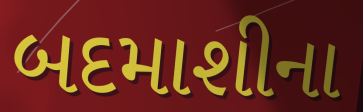
બદમાશીના